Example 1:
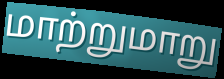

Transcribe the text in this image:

மாற்றுமாறு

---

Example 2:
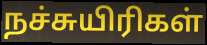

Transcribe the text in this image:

நச்சுயிரிகள்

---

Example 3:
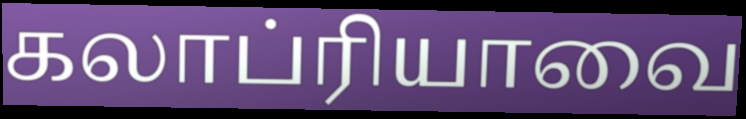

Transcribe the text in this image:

கலாப்ரியாவை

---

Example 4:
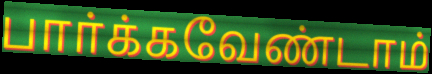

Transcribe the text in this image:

பார்க்கவேண்டாம்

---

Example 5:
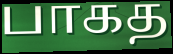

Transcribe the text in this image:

பாகத